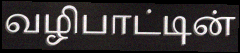
வழிபாட்டின்